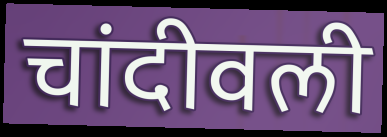
चांदीवली